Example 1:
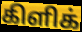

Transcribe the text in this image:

கிளிக்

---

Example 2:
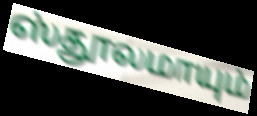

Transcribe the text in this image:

ஸ்தூலமாயும்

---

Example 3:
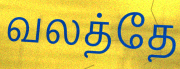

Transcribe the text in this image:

வலத்தே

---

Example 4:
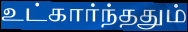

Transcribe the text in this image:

உட்கார்ந்ததும்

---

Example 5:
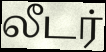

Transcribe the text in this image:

லீடர்